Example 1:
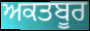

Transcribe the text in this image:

ਅਕਤਬੂਰ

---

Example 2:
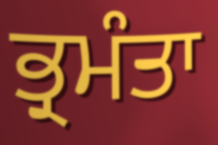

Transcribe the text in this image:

ਭ੍ਰਮੰਤਾ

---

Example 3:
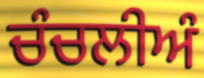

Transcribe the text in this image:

ਚੰਚਲੀਅੰ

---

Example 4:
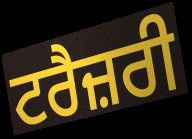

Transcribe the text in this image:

ਟਰੈਜ਼ਰੀ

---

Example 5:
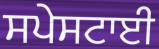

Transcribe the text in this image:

ਸਪੇਸਟਾਈ